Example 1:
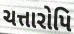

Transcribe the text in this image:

ચત્તારોપિ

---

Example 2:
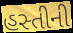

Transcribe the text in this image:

હસ્તીની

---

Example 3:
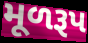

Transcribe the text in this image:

મૂળરૂપ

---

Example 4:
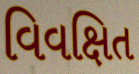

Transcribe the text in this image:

વિવક્ષિત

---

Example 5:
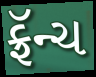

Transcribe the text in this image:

ફ્રૅન્ચ